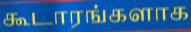
கூடாரங்களாக